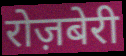
रोज़बेरी